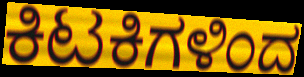
ಕಿಟಕಿಗಳಿಂದ